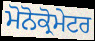
ਮੋਨੋਕ੍ਰੋਮੇਟਰ